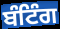
ਬੰਟਿੰਗ